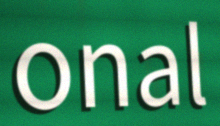
onal